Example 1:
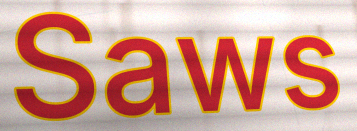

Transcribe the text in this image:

Saws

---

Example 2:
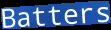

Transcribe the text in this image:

Batters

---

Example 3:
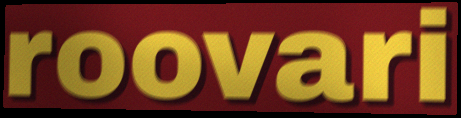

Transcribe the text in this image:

roovari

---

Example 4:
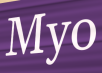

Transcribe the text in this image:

Myo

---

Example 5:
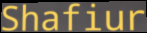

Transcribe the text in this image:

Shafiur